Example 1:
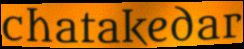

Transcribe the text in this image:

chatakedar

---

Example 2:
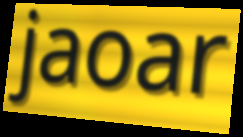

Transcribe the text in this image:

jaoar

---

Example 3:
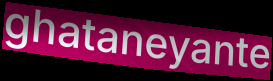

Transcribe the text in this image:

ghataneyante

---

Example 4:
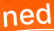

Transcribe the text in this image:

ned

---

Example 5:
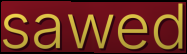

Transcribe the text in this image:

sawed